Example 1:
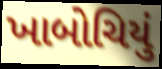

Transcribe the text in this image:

ખાબોચિયું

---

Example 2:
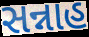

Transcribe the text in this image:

સન્નાહ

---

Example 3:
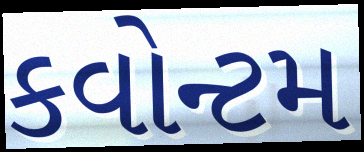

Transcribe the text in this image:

કવોન્ટમ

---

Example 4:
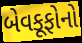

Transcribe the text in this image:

બેવકૂફોનો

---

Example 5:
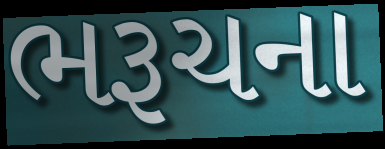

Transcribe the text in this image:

ભરૂચના